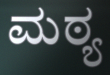
ಮಠ್ಯ